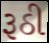
રૂઠી